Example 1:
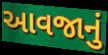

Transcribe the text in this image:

આવજાનું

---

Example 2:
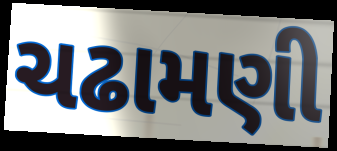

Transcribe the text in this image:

ચઢામણી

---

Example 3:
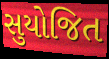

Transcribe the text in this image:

સુયોજિત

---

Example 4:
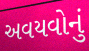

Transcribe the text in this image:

અવયવોનું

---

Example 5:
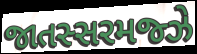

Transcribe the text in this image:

જાતસ્સરમજ્ઝે